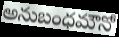
అనుబంధమౌనో